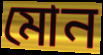
মোন